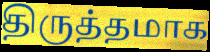
திருத்தமாக